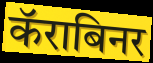
कॅराबिनर